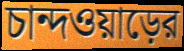
চান্দওয়াড়ের